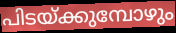
പിടയ്ക്കുമ്പോഴും